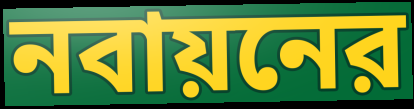
নবায়নের